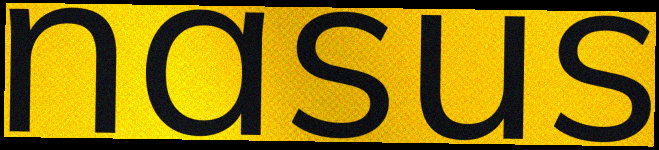
nasus